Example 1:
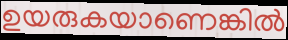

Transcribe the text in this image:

ഉയരുകയാണെങ്കിൽ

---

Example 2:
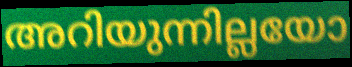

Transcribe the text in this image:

അറിയുന്നില്ലയോ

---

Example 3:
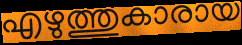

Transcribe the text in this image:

എഴുത്തുകാരായ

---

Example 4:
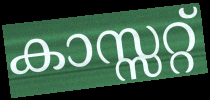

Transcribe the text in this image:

കാസ്സറ്റ്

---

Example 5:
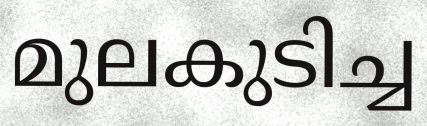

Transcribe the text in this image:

മുലകുടിച്ച